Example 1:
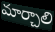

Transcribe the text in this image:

మార్చాలి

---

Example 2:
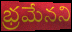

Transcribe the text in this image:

భ్రమేనని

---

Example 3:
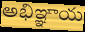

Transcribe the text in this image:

అభిఞ్ఞాయ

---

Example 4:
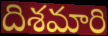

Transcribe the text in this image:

దిశమారి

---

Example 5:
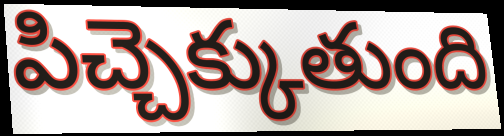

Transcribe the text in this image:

పిచ్చెక్కుతుంది